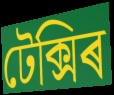
টেক্সিৰ